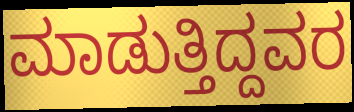
ಮಾಡುತ್ತಿದ್ದವರ